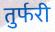
तुर्फरी